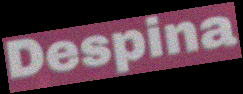
Despina